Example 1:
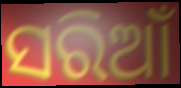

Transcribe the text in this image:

ସରିଆଁ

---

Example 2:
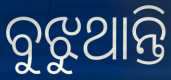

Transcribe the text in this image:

ବୁଝୁଥାନ୍ତି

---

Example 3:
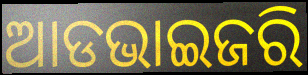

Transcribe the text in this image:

ଆଡଭାଇଜରି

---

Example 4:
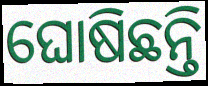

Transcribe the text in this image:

ଘୋଷିଛନ୍ତି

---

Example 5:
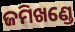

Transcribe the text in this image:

ଜମିଖଣ୍ଡେ